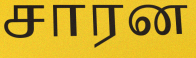
சாரன